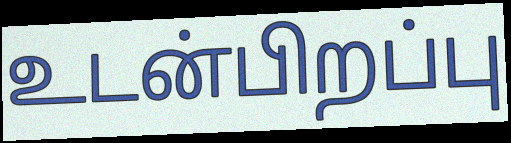
உடன்பிறப்பு